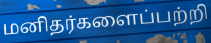
மனிதர்களைப்பற்றி